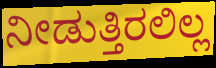
ನೀಡುತ್ತಿರಲಿಲ್ಲ